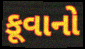
કૂવાનો